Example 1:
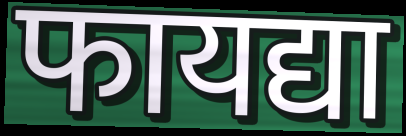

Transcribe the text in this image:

फायद्या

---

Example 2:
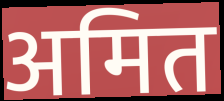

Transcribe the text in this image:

अमित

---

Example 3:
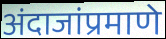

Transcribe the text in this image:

अंदाजांप्रमाणे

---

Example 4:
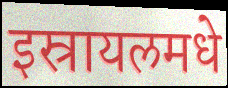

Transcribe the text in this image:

इस्रायलमधे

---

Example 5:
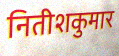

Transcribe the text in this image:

नितीशकुमार